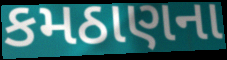
કમઠાણના